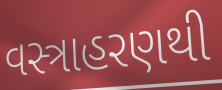
વસ્ત્રાહરણથી